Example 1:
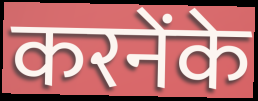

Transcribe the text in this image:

करनेंके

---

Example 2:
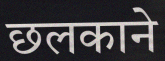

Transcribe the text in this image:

छलकाने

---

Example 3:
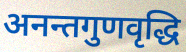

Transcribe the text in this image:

अनन्तगुणवृद्धि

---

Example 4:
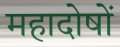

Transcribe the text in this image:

महादोषों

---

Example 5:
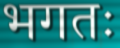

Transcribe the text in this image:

भगतः